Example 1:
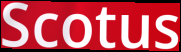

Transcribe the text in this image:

Scotus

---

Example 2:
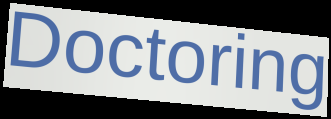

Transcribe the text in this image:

Doctoring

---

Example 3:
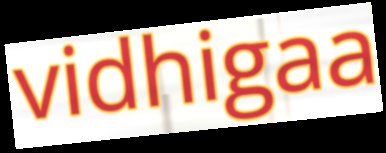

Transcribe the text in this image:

vidhigaa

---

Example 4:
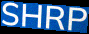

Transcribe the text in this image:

SHRP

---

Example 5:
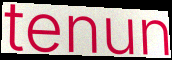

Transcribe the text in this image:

tenun